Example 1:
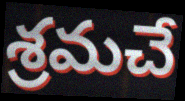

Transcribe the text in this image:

శ్రమచే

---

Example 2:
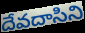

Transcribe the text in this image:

దేవదాసిని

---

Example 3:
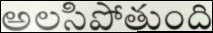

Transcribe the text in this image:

అలసిపోతుంది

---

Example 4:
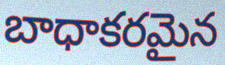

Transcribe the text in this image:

బాధాకరమైన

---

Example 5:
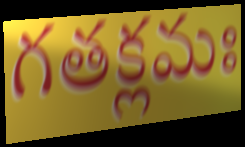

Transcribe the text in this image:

గతక్లమః